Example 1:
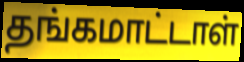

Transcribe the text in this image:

தங்கமாட்டாள்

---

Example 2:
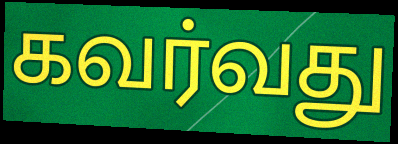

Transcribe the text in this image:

கவர்வது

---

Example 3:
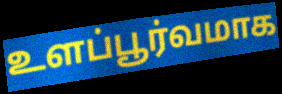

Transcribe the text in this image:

உளப்பூர்வமாக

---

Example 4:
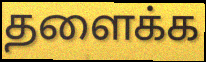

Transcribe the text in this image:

தளைக்க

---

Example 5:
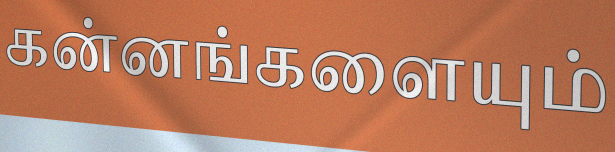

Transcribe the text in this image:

கன்னங்களையும்